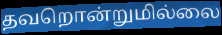
தவறொன்றுமில்லை